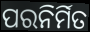
ପରନିର୍ମିତ